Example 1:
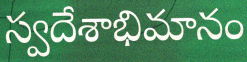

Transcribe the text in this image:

స్వదేశాభిమానం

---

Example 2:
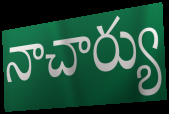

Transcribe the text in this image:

నాచార్యు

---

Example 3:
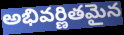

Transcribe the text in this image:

అభివర్ణితమైన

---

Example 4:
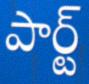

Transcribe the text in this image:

పార్ట్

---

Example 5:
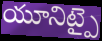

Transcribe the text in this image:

యూనిట్పై